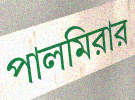
পালমিরার